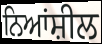
ਨਿਆਂਸ਼ੀਲ